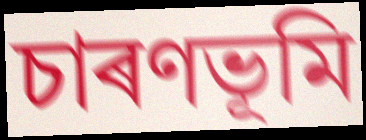
চাৰণভূমি